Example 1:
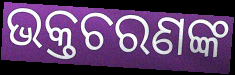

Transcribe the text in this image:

ଭକ୍ତଚରଣଙ୍କ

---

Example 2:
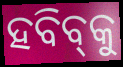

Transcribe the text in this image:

ହବିବ୍‌କୁ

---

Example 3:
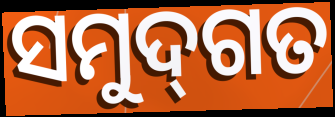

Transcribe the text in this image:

ସମୁଦ୍‌ଗତ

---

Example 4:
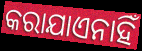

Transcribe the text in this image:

କରାଯାଏନାହିଁ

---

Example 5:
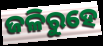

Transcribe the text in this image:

ଜଳିରୁହେ